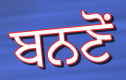
ਬਨਣੋਂ